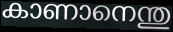
കാണാനെന്തു